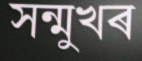
সন্মুখৰ